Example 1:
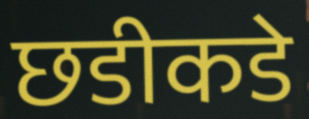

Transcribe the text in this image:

छडीकडे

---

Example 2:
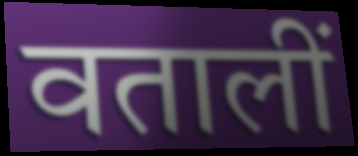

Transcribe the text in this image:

वतालीं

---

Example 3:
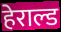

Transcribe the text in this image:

हेराल्ड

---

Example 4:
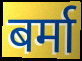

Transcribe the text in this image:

बर्मा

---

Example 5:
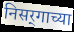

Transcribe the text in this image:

निसर्गाच्या